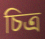
চিত্র